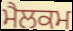
ਮੈਲਕਮ